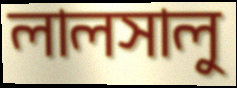
লালসালু